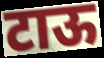
टाऊ